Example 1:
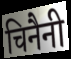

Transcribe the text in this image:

चिनैनी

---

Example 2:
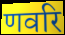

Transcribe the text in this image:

णवरि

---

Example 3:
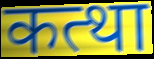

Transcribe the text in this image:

कत्था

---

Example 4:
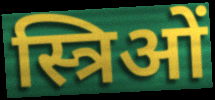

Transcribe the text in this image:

स्त्रिओं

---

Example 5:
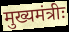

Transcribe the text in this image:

मुख्यमंत्रीः